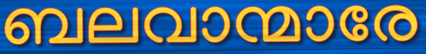
ബലവാന്മാരേ